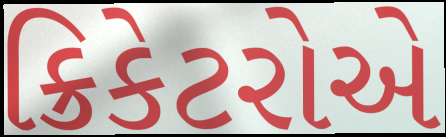
ક્રિકેટરોએ